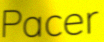
Pacer